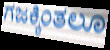
ಗಜಕ್ಕಿಂತಲೂ